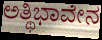
ಅತ್ಥಿಭಾವೇನ